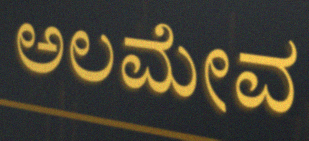
ಅಲಮೇವ